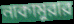
নাকামুরার